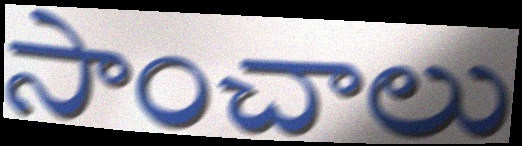
సాంచాలు